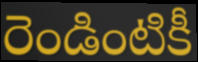
రెండింటికీ